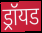
ड्रॉयड